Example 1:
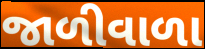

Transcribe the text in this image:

જાળીવાળા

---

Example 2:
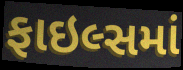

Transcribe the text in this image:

ફાઇલ્સમાં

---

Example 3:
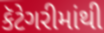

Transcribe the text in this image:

કૅટેગરીમાંથી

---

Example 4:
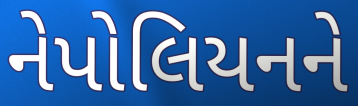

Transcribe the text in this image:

નેપોલિયનને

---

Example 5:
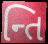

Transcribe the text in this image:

ન્તિ